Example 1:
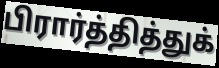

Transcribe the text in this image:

பிரார்த்தித்துக்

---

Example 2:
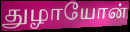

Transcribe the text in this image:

துழாயோன்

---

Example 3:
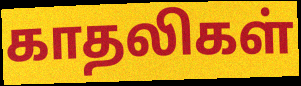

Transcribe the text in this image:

காதலிகள்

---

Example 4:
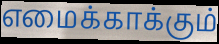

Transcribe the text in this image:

எமைக்காக்கும்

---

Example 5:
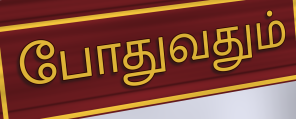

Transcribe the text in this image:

போதுவதும்